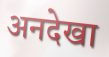
अनदेखा